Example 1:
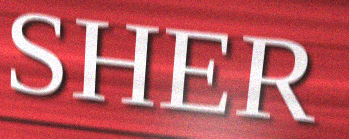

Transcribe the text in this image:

SHER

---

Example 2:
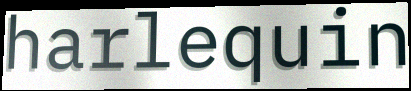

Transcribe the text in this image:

harlequin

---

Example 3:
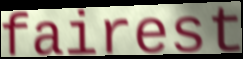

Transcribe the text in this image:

fairest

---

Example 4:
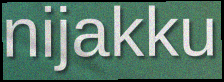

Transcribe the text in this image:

nijakku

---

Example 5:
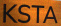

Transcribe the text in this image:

KSTA